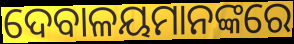
ଦେବାଳୟମାନଙ୍କରେ